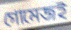
গোমেজই